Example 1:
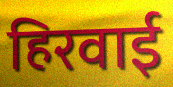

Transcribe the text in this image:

हिरवाई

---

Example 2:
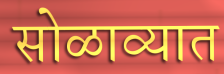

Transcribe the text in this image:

सोळाव्यात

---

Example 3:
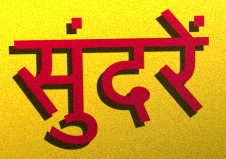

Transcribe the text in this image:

सुंदरें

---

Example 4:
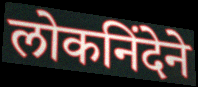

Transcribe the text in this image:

लोकनिंदेने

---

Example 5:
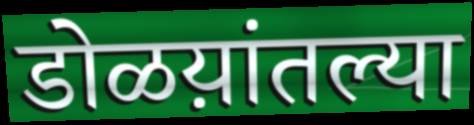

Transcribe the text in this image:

डोळय़ांतल्या